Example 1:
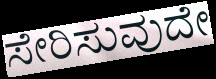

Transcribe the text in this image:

ಸೇರಿಸುವುದೇ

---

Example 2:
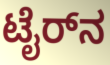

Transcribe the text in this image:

ಟೈರ್‌ನ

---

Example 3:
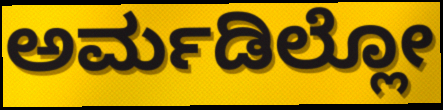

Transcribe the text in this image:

ಅರ್ಮಡಿಲ್ಲೋ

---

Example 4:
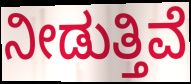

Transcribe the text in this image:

ನೀಡುತ್ತಿವೆ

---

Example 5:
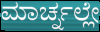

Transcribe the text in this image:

ಮಾರ್ಚ್ನಲ್ಲೇ